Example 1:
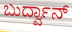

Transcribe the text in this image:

ಬುರ್ದ್ವಾನ್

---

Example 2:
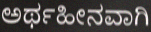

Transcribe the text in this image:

ಅರ್ಥಹೀನವಾಗಿ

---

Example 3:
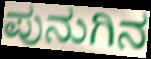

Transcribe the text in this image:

ಪುನುಗಿನ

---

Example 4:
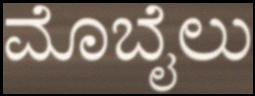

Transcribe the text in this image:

ಮೊಬೈಲು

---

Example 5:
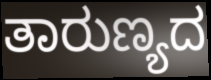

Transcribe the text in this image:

ತಾರುಣ್ಯದ